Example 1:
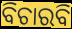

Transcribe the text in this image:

ବିଚାରବି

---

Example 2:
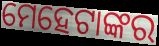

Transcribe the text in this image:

ମେହେଟାଙ୍କର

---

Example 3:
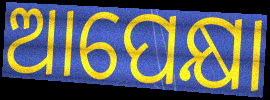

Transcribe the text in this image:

ଆପେକ୍ଷା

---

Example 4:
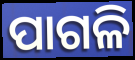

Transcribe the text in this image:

ପାଗଳି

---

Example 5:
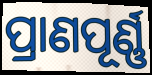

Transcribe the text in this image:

ପ୍ରାଣପୂର୍ଣ୍ଣ